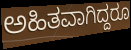
ಅಹಿತವಾಗಿದ್ದರೂ